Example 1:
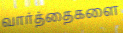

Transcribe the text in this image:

வார்த்தைகளை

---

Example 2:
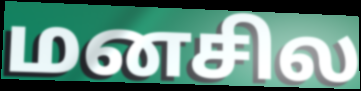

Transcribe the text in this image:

மனசில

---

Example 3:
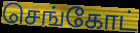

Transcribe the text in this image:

செங்கோட்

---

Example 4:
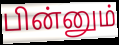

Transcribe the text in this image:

பின்னும்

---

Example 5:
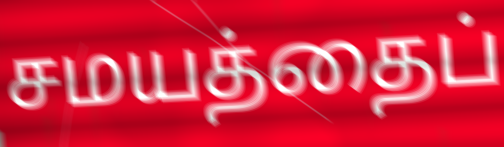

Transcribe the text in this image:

சமயத்தைப்